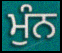
ਮੁੰਨ